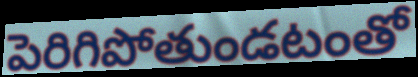
పెరిగిపోతుండటంతో